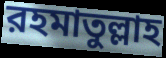
রহমাতুল্লাহ